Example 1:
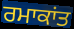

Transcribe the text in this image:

ਰਮਾਕਾਂਤ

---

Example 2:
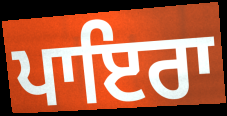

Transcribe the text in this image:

ਪਾਇਰਾ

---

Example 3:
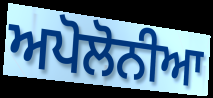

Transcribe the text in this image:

ਅਪੋਲੋਨੀਆ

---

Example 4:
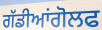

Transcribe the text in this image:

ਗੱਡੀਆਂਗੋਲਫ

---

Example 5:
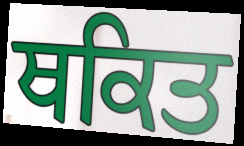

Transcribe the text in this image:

ਥਕਿਤ